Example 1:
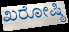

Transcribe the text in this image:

ಖರೋಷ್ಠಿ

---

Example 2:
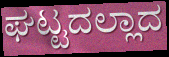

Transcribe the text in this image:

ಘಟ್ಟದಲ್ಲಾದ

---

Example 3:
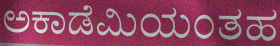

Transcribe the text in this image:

ಅಕಾಡೆಮಿಯಂತಹ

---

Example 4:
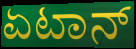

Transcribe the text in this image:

ಏಟಾನ್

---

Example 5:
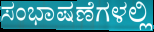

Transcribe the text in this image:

ಸಂಭಾಷಣೆಗಳಲ್ಲಿ